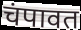
चंपावत